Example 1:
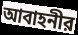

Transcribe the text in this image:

আবাহনীর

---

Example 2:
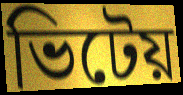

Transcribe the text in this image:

ভিটেয়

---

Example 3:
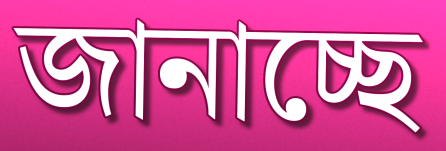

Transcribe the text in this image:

জানাচ্ছে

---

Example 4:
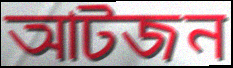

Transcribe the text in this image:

আটজন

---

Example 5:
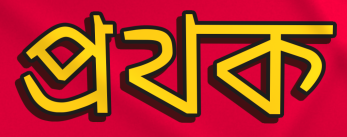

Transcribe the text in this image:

প্রথক